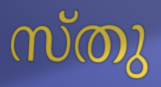
സ്തു